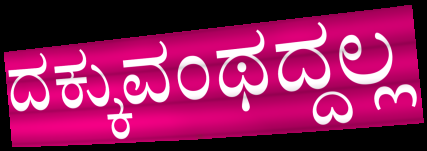
ದಕ್ಕುವಂಥದ್ದಲ್ಲ